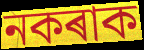
নকৰাক